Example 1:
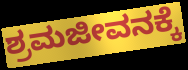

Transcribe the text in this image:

ಶ್ರಮಜೀವನಕ್ಕೆ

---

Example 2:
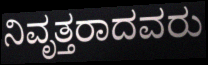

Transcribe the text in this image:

ನಿವೃತ್ತರಾದವರು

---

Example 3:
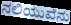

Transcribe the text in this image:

ನಲಿಯುವೆನು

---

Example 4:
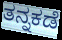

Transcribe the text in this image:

ತನ್ನಕಡೆ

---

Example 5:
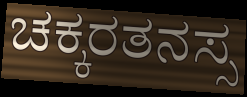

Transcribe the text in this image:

ಚಕ್ಕರತನಸ್ಸ